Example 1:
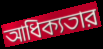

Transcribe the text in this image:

আধিক্যতার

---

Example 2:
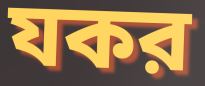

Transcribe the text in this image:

যকর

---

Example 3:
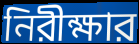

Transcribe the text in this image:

নিরীক্ষার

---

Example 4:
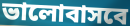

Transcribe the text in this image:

ভালোবাসবে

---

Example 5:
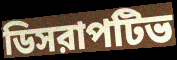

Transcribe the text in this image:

ডিসরাপটিভ